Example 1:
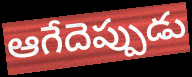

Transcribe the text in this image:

ఆగేదెప్పుడు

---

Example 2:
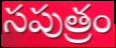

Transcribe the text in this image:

సపుత్రం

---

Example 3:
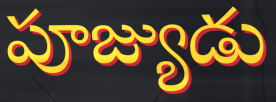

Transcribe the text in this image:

పూజ్యుడు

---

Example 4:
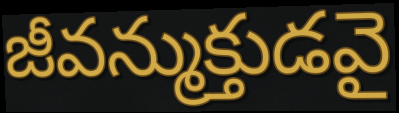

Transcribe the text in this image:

జీవన్ముక్తుడవై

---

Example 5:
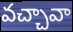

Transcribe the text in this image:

వచ్చావా